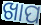
ଖାପ